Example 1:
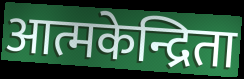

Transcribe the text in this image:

आत्मकेन्द्रिता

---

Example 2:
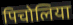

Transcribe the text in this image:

पिचोलिया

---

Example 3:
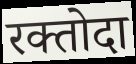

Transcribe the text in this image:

रक्तोदा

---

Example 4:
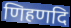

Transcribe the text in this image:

णिहणदि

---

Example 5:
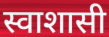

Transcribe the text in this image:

स्वाशासी